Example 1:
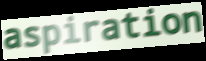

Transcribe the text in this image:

aspiration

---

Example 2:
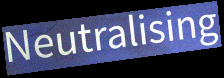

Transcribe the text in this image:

Neutralising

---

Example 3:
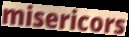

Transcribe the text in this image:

misericors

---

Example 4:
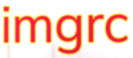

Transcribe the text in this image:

imgrc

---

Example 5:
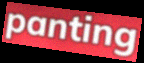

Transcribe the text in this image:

panting